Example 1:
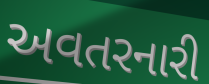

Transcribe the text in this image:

અવતરનારી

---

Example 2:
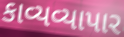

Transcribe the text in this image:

કાવ્યવ્યાપાર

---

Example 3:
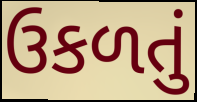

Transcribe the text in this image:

ઉકળતું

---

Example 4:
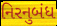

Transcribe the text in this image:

નિરનુબંધ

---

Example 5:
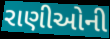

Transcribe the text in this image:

રાણીઓની